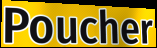
Poucher